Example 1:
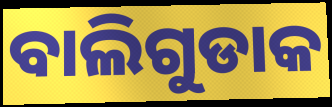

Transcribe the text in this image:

ବାଲିଗୁଡାକ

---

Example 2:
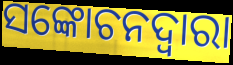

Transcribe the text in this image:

ସଙ୍କୋଚନଦ୍ୱାରା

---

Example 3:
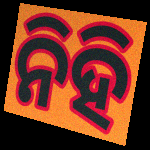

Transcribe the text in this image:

ନିହି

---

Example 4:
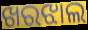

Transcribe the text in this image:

ଖରଝାଲ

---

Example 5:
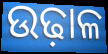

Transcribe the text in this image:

ଉଢ଼ାଳ